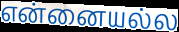
என்னையல்ல